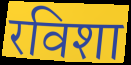
रविशा